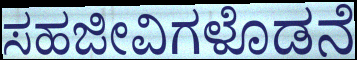
ಸಹಜೀವಿಗಳೊಡನೆ